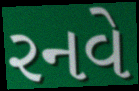
રનવે